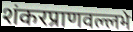
शंकरप्राणवल्लभे